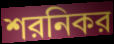
শরনিকর